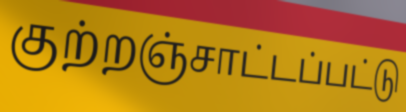
குற்றஞ்சாட்டப்பட்டு